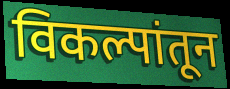
विकल्पांतून